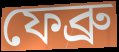
ফেব্রু